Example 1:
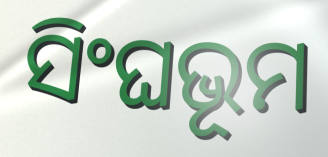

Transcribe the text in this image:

ସିଂଘଭୂମ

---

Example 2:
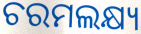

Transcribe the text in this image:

ଚରମଲକ୍ଷ୍ୟ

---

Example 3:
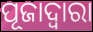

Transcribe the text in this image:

ପୂଜାଦ୍ଵାରା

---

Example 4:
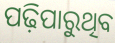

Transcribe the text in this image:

ପଢ଼ିପାରୁଥିବ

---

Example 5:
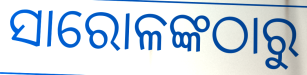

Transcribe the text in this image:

ସାରୋଳଙ୍କଠାରୁ